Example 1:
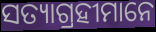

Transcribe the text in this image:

ସତ୍ୟାଗ୍ରହୀମାନେ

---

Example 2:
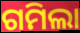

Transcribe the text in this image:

ଗମିଲା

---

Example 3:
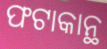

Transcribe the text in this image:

ଫଟାକାନ୍ଥ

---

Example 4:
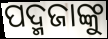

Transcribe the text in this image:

ପଦ୍ମଜାଙ୍କୁ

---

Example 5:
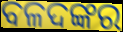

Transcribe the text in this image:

ବଳଦଙ୍କର